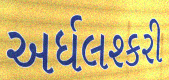
અર્ધલશ્કરી